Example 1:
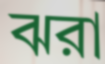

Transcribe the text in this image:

ঝরা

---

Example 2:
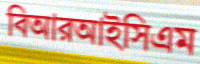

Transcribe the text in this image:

বিআরআইসিএম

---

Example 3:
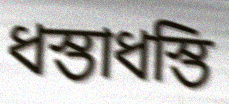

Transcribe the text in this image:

ধস্তাধস্তি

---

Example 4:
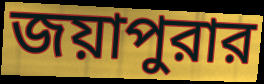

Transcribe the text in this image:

জয়াপুরার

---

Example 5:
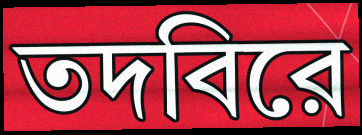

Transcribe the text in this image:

তদবিরে